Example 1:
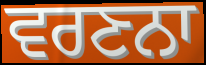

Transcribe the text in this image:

ਵਰਣਨਾ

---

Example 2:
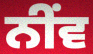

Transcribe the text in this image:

ਨੀਂਵ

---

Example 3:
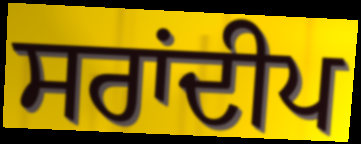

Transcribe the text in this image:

ਸਰਾਂਦੀਪ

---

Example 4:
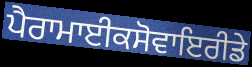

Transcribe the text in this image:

ਪੈਰਾਮਾਈਕਸੋਵਾਇਰੀਡੇ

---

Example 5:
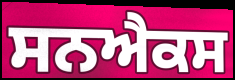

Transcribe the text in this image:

ਸਨਐਕਸ